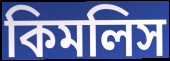
কিমলিস